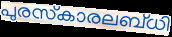
പുരസ്‌കാരലബ്ധി